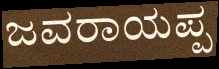
ಜವರಾಯಪ್ಪ